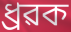
ধ্ৰৱক